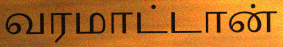
வரமாட்டான்